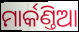
ମାର୍କଣ୍ତିଆ